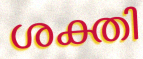
ശക്തി